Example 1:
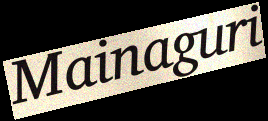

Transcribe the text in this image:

Mainaguri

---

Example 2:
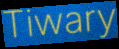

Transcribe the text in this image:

Tiwary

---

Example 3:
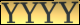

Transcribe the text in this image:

YYYY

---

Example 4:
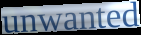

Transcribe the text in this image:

unwanted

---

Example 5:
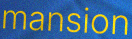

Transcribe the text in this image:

mansion